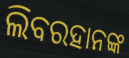
ଲିବରହାନଙ୍କ